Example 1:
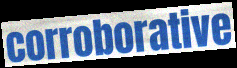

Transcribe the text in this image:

corroborative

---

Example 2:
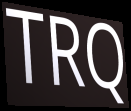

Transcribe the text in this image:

TRQ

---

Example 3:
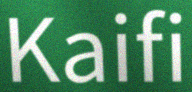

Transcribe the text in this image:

Kaifi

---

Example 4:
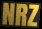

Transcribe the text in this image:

NRZ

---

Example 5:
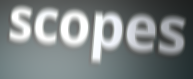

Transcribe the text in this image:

scopes